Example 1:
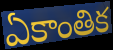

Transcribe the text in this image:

ఏకాంతిక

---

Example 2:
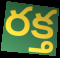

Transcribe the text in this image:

రక్త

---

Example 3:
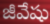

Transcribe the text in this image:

జీవేషు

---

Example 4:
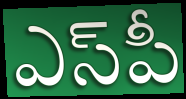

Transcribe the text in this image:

ఎస్‌పీ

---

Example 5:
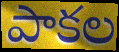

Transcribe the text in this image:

పాకల